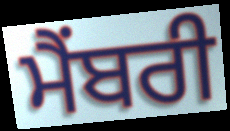
ਮੈਂਬਰੀ